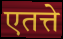
एतत्ते